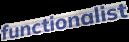
functionalist